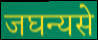
जघन्यसे